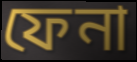
ফেনা